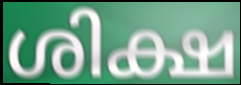
ശിക്ഷ